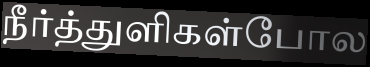
நீர்த்துளிகள்போல